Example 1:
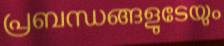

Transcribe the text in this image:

പ്രബന്ധങ്ങളുടേയും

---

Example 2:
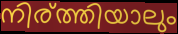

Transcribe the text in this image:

നിര്ത്തിയാലും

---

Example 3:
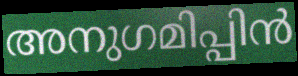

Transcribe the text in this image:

അനുഗമിപ്പിൻ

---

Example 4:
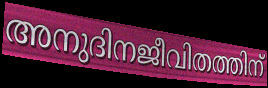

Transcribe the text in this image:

അനുദിനജീവിതത്തിന്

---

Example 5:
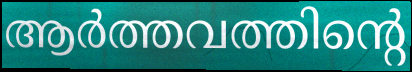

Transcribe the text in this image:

ആർത്തവത്തിന്റെ